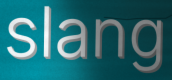
slang